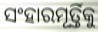
ସଂହାରମୂର୍ତ୍ତିକୁ